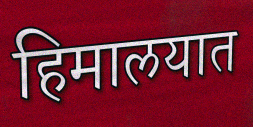
हिमालयात